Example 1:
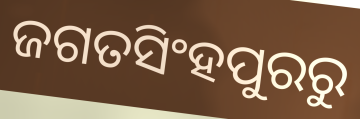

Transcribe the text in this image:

ଜଗତସିଂହପୁରରୁ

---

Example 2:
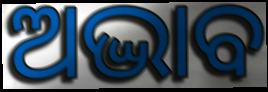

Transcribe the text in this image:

ଅଦ୍ଭାବ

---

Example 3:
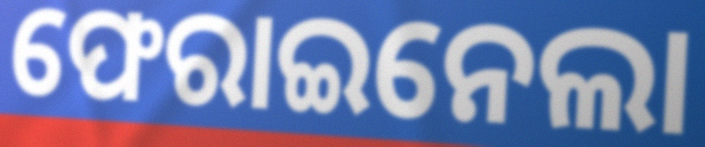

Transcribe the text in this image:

ଫେରାଇନେଲା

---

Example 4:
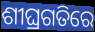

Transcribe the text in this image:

ଶୀଘ୍ରଗତିରେ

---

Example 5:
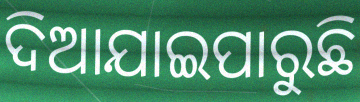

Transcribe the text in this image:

ଦିଆଯାଇପାରୁଛି